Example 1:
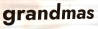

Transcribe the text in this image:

grandmas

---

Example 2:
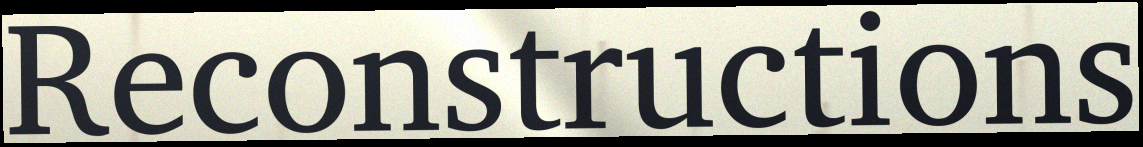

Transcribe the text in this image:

Reconstructions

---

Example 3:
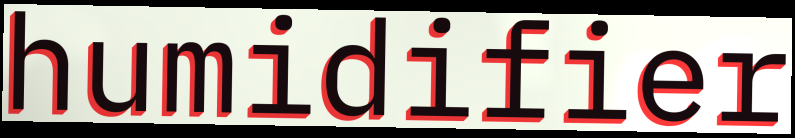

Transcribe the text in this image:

humidifier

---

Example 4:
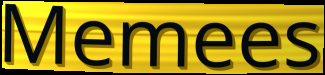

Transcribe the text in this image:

Memees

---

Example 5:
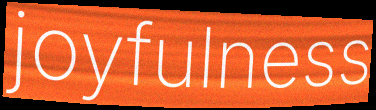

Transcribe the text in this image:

joyfulness